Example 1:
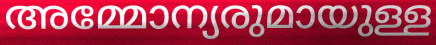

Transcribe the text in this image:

അമ്മോന്യരുമായുള്ള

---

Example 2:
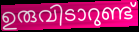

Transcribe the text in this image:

ഉരുവിടാറുണ്ട്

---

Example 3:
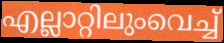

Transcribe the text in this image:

എല്ലാറ്റിലുംവെച്ച്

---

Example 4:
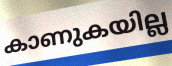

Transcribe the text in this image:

കാണുകയില്ല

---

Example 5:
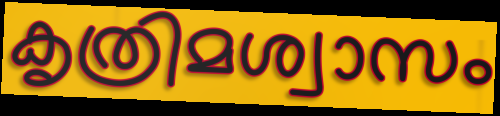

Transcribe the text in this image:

കൃത്രിമശ്വാസം